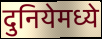
दुनियेमध्ये